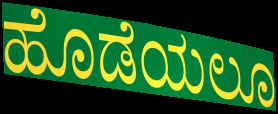
ಹೊಡೆಯಲೂ